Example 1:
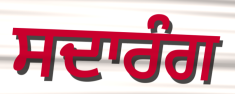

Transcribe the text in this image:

ਸਦਾਰੰਗ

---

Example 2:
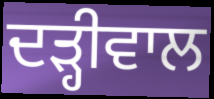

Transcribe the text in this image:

ਦੜ੍ਹੀਵਾਲ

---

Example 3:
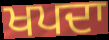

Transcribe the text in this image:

ਖਪਦਾ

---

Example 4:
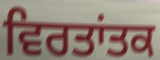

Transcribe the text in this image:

ਵਿਰਤਾਂਤਕ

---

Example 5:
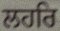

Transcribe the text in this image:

ਲਹਰਿ